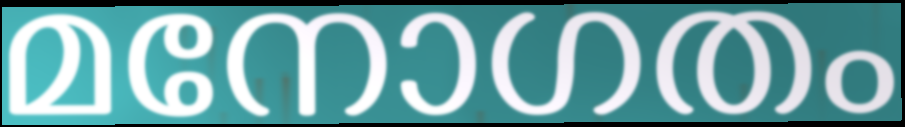
മനോഗതം